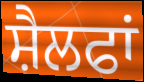
ਸ਼ੈਲਫਾਂ